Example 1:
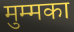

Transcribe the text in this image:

मुम्मका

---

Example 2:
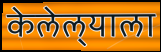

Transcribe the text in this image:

केलेल्याला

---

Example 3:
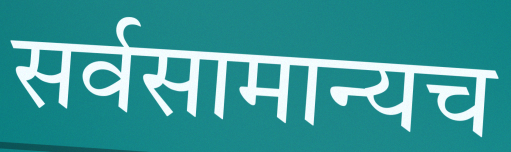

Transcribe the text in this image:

सर्वसामान्यच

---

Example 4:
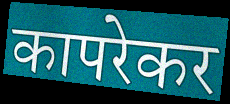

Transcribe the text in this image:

कापरेकर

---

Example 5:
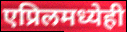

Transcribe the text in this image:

एप्रिलमध्येही